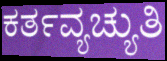
ಕರ್ತವ್ಯಚ್ಯುತಿ